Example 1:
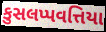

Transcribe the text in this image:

કુસલપ્પવત્તિયા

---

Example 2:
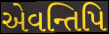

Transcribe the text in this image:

એવન્તિપિ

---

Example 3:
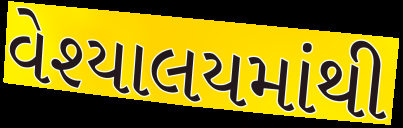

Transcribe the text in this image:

વેશ્યાલયમાંથી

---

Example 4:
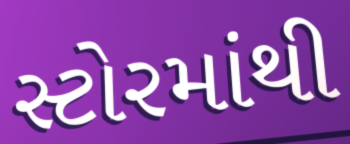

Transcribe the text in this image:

સ્ટોરમાંથી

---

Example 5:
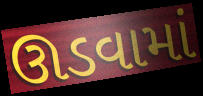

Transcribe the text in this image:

ઊડવામાં